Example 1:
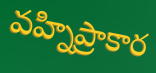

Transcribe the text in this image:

వహ్నిప్రాకార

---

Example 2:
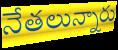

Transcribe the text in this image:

నేతలున్నారు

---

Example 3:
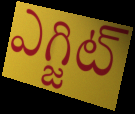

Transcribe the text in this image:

ఎగ్జిట్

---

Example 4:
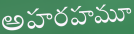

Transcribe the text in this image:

అహరహమూ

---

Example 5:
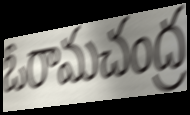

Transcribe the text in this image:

ఓరామచంద్ర